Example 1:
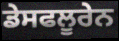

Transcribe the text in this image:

ਡੇਸਫਲੂਰੇਨ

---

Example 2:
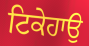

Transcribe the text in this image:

ਟਿਕੇਹਾਉ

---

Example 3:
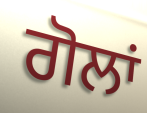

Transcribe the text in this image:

ਗੋਲਾਂ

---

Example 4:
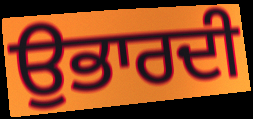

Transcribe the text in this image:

ਉਭਾਰਦੀ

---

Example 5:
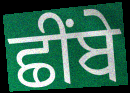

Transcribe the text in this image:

ਛੀਂਬੇ